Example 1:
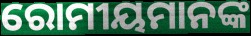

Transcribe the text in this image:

ରୋମୀୟମାନଙ୍କ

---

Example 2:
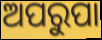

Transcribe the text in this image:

ଅପରୁପା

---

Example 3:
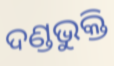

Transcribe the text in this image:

ଦଣ୍ଡଭୁକ୍ତି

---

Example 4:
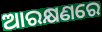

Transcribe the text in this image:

ଆରକ୍ଷଣରେ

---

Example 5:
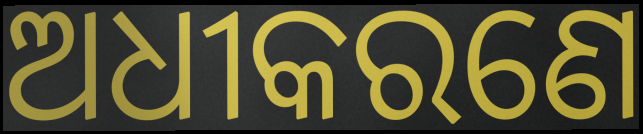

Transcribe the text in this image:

ଅଧୀକରଣେ